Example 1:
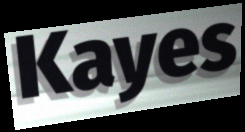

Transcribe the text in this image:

Kayes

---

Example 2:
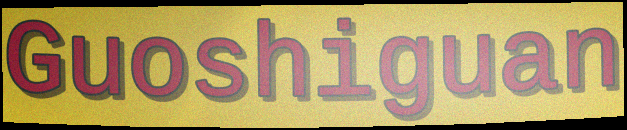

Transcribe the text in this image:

Guoshiguan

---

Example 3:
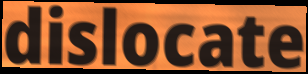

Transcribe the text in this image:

dislocate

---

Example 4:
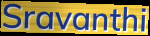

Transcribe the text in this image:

Sravanthi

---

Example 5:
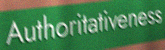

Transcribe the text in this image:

Authoritativeness